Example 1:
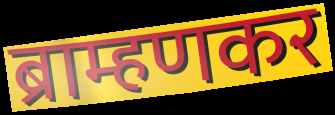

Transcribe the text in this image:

ब्राम्हणकर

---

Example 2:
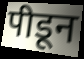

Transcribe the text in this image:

पीडून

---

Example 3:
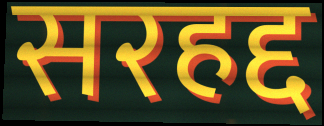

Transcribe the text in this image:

सरहद्द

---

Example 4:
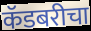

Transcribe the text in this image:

कॅडबरीचा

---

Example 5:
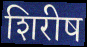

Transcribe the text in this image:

शिरीष